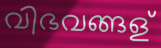
വിഭവങ്ങള്